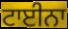
ਟਾਈਨਾ